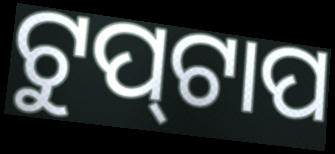
ଟୁପ୍‌ଟାପ